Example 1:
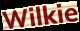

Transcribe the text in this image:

Wilkie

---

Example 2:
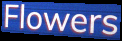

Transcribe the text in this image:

Flowers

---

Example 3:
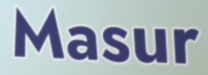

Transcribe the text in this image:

Masur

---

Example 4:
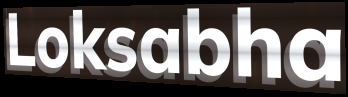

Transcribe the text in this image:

Loksabha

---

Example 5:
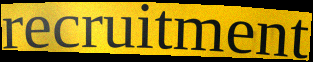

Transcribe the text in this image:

recruitment